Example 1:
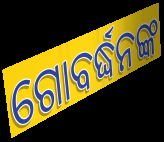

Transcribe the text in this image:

ଗୋବର୍ଦ୍ଧନଙ୍କ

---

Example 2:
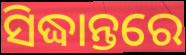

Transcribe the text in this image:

ସିଦ୍ଧାନ୍ତରେ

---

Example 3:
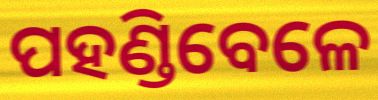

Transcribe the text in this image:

ପହଣ୍ଡିବେଳେ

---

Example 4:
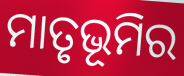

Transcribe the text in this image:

ମାତୃଭୂମିର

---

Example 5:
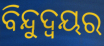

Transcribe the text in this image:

ବିନ୍ଦୁଦ୍ବୟର